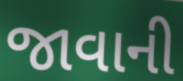
જાવાની